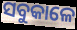
ସବୁକାଳେ